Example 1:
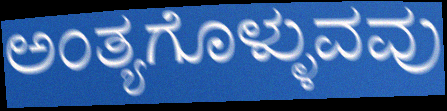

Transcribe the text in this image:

ಅಂತ್ಯಗೊಳ್ಳುವವು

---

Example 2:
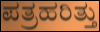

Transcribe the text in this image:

ಪತ್ರಹರಿತ್ತು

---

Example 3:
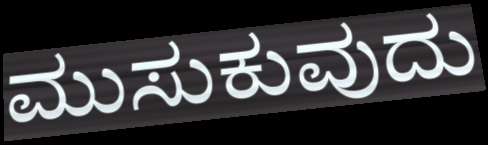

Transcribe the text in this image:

ಮುಸುಕುವುದು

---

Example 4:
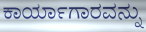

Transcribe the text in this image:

ಕಾರ್ಯಾಗಾರವನ್ನು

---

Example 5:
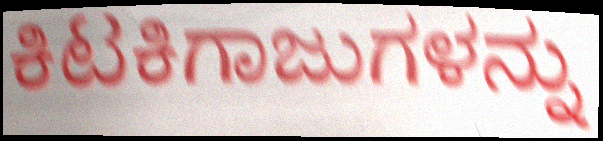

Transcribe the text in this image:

ಕಿಟಕಿಗಾಜುಗಳನ್ನು